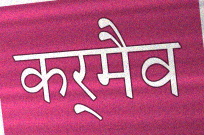
कर्मैव